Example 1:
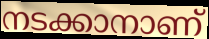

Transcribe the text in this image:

നടക്കാനാണ്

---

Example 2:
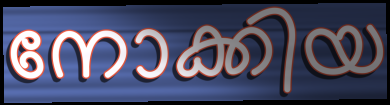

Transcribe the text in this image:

നോക്കിയ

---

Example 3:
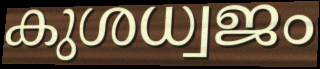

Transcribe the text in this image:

കുശധ്വജം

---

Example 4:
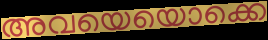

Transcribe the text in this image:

അവയെയൊക്കെ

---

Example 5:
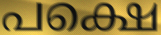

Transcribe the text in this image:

പക്ഷെ